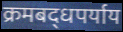
क्रमबद्धपर्याय